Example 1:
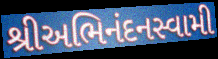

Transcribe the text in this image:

શ્રીઅભિનંદનસ્વામી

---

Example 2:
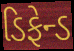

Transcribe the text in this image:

ડિફેન્ડ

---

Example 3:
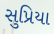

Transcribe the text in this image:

સુપ્રિયા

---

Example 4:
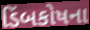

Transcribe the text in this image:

ડિંબકોષના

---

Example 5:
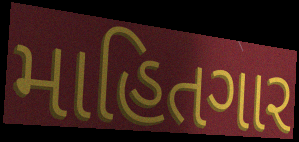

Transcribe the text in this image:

માહિતગાર